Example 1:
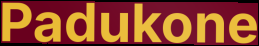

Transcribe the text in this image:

Padukone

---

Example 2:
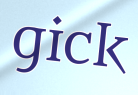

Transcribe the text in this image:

gick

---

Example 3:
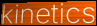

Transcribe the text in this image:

kinetics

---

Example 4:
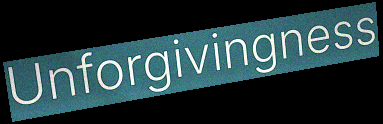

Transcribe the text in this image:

Unforgivingness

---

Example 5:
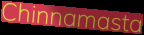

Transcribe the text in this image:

Chinnamasta